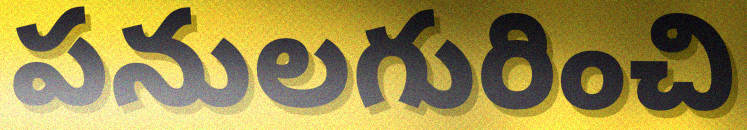
పనులగురించి